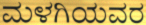
ಮಳಗಿಯವರ